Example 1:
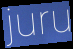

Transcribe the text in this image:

juru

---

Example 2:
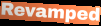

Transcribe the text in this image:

Revamped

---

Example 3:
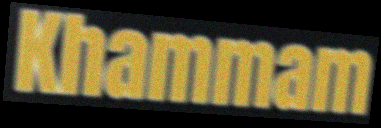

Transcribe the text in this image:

Khammam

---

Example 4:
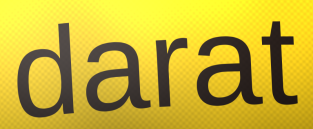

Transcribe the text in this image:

darat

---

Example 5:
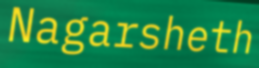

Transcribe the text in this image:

Nagarsheth